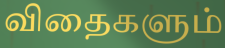
விதைகளும்